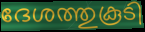
ദേശത്തുകൂടി